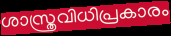
ശാസ്ത്രവിധിപ്രകാരം